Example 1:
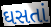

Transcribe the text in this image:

ઘસતાં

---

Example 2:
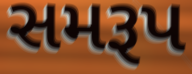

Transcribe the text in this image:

સમરૂપ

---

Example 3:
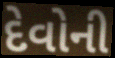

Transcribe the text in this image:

દેવોની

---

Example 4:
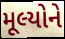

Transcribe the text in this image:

મૂલ્યોને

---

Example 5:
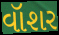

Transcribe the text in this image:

વૉશર